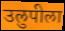
उलुपीला